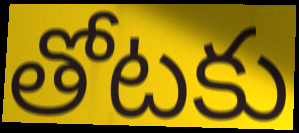
తోటకు